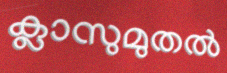
ക്ലാസുമുതൽ